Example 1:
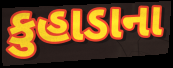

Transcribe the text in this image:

કુહાડાના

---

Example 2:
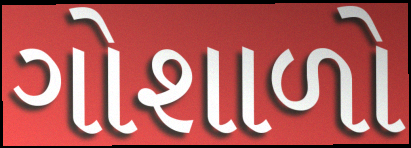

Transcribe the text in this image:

ગોશાળો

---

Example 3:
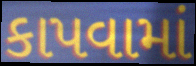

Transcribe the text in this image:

કાપવામાં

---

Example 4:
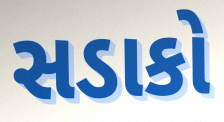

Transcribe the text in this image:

સડાકો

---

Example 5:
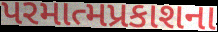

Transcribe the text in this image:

પરમાત્મપ્રકાશના